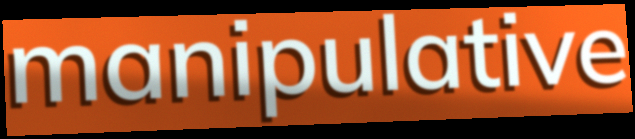
manipulative